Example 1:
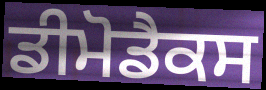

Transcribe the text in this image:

ਡੀਮੋਡੈਕਸ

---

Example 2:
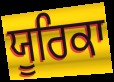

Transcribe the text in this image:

ਯੂਰਿਕਾ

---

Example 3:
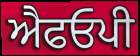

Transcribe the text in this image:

ਐਫਓਪੀ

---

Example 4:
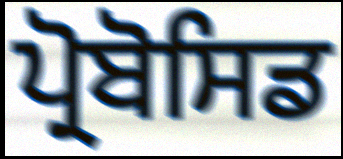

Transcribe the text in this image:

ਪ੍ਰੋਬੋਸਿਡ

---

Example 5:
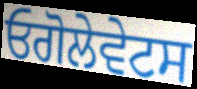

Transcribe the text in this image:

ਓਗੋਲੇਵੇਟਸ